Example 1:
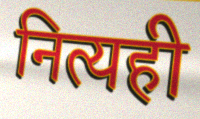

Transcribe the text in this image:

नित्यही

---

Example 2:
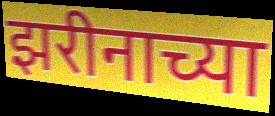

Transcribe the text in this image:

झरीनाच्या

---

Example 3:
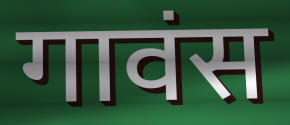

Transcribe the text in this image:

गावंस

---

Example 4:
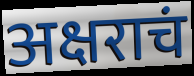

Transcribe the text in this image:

अक्षराचं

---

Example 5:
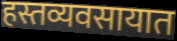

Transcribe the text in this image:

हस्तव्यवसायात